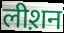
लीश़न